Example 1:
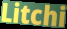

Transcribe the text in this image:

Litchi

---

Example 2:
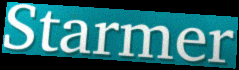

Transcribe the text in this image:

Starmer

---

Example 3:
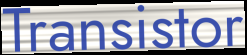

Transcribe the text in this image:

Transistor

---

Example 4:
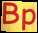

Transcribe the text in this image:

Bp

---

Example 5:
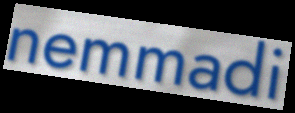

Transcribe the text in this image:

nemmadi